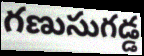
గణుసుగడ్డ